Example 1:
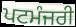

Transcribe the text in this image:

ਪਟਮੰਜਰੀ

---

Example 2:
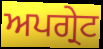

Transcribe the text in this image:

ਅਪਗ੍ਰੇਟ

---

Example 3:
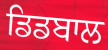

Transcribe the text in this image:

ਡਿਡਬਾਲ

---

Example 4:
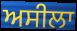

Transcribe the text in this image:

ਅਸੀਲਾ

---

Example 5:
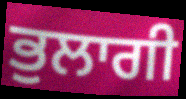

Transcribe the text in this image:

ਭੁਲਾਗੀ